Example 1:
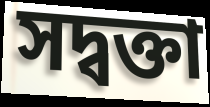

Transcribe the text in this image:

সদ্বক্তা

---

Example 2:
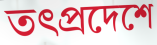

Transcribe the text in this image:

তৎপ্রদেশে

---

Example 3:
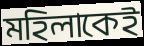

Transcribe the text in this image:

মহিলাকেই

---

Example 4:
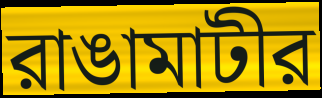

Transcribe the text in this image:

রাঙামাটীর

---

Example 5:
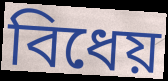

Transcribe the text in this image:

বিধেয়